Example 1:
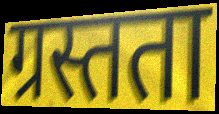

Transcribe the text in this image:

ग्रस्तता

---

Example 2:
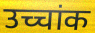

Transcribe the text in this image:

उच्चांक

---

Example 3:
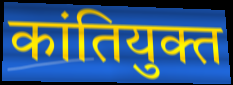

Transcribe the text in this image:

कांतियुक्त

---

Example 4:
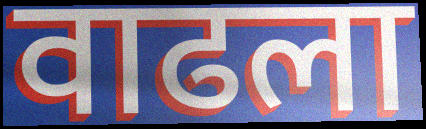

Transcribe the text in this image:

वाढला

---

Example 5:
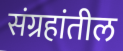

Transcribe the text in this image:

संग्रहांतील